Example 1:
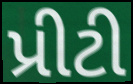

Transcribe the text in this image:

પ્રીટી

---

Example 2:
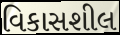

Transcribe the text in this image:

વિકાસશીલ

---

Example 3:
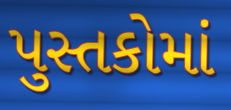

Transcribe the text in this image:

પુસ્તકોમાં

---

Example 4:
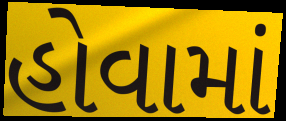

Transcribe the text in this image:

હોવામાં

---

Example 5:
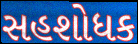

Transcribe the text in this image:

સહશોધક